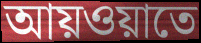
আয়ওয়াতে